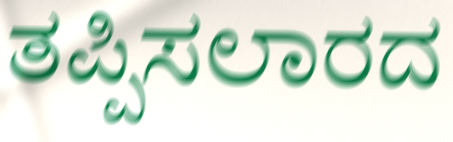
ತಪ್ಪಿಸಲಾರದ